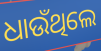
ଧାଉଁଥିଲେ